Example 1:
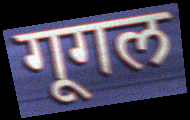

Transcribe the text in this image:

गूगल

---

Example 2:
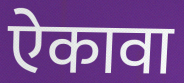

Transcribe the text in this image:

ऐकावा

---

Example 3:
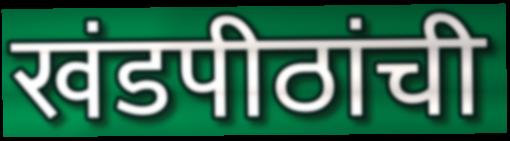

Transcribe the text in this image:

खंडपीठांची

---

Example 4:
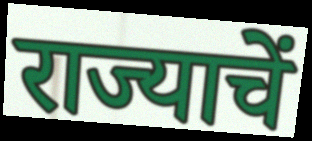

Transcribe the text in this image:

राज्याचें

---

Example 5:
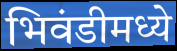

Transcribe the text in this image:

भिवंडीमध्ये